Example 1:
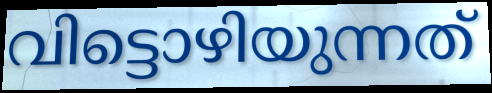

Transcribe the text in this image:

വിട്ടൊഴിയുന്നത്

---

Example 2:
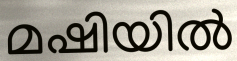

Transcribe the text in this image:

മഷിയിൽ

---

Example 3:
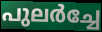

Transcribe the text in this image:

പുലർച്ചേ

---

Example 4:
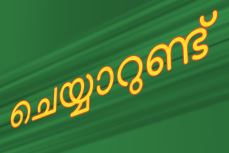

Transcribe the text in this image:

ചെയ്യാറുണ്ട്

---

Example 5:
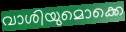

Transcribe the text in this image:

വാശിയുമൊക്കെ